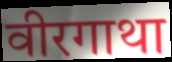
वीरगाथा